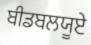
ਬੀਡਬਲਯੂਏ